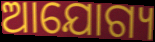
ଆଯୋଗ୍ୟ